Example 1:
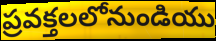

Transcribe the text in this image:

ప్రవక్తలలోనుండియు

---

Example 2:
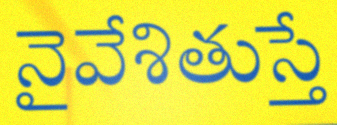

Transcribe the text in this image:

నైవేశితుస్తే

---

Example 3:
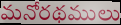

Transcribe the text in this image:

మనోరథములు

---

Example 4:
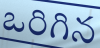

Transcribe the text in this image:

ఒరిగిన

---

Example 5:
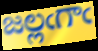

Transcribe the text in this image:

జల్లఁగాఁ